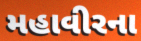
મહાવીરના